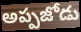
అప్పజోడు